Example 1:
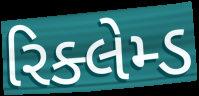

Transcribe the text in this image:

રિક્લેમ્ડ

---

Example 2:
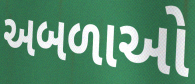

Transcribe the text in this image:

અબળાઓ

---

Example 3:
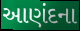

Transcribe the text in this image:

આણંદના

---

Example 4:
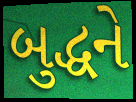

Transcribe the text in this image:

બુદ્ધને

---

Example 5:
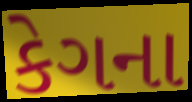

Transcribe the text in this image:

કેગના